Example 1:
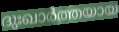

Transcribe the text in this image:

ദുഃഖാർത്തയായ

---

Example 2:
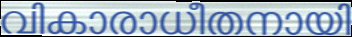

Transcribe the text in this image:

വികാരാധീതനായി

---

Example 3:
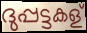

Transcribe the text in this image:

ദുപ്പട്ടകള്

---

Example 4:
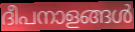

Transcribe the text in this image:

ദീപനാളങ്ങൾ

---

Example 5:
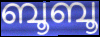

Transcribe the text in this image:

ബൂബൂ